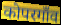
कोपरगाँव